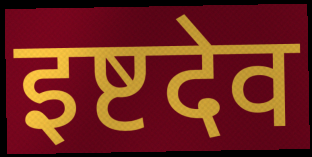
इष्टदेव